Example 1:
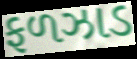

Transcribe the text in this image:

ફળઝાડ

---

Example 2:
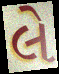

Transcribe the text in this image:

લે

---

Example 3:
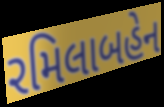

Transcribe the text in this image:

રમિલાબહેન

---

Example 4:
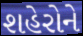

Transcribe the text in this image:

શહેરોને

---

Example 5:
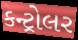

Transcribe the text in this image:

કન્ટ્રોલર